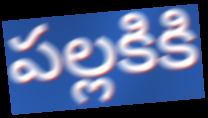
పల్లకికి